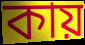
কায়